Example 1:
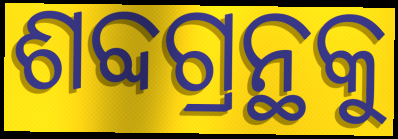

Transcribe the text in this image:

ଶବ୍ଦଗ୍ରନ୍ଥକୁ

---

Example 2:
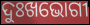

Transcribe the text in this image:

ଦୁଃଖଭୋଗୀ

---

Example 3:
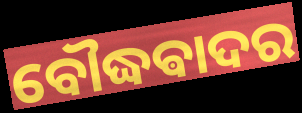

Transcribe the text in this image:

ବୌଦ୍ଧଵାଦର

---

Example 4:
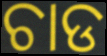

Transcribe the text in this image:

ଚାଡ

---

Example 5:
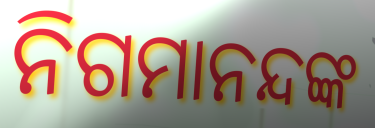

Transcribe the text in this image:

ନିଗମାନନ୍ଦଙ୍କ